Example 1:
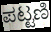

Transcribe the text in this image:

ಪಟ್ಟಣಿ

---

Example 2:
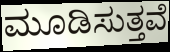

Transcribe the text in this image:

ಮೂಡಿಸುತ್ತವೆ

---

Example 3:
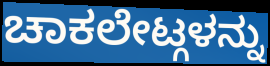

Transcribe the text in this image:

ಚಾಕಲೇಟ್ಗಳನ್ನು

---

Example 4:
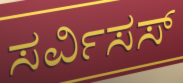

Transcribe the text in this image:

ಸರ್ವಿಸಸ್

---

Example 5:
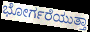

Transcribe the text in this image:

ಭೋರ್ಗರೆಯುತ್ತಾ